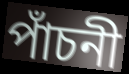
পাঁচনী